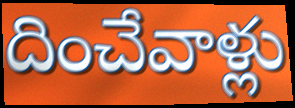
దించేవాళ్లు